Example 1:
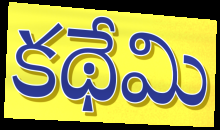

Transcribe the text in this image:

కథేమి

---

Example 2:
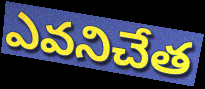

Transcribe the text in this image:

ఎవనిచేత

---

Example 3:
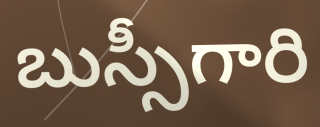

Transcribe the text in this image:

బుస్సీగారి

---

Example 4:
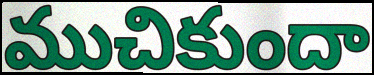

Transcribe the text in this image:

ముచికుందా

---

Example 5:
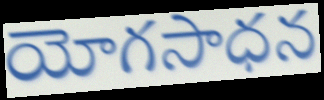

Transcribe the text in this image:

యోగసాధన